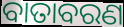
ବାତାବରଣ